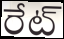
రేట్